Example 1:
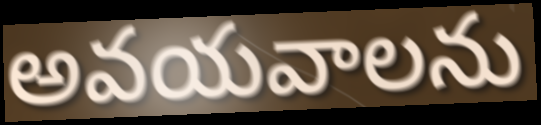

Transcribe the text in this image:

అవయవాలను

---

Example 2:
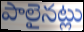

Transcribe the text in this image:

పాలైనట్లు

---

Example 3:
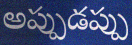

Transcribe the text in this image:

అప్పుడప్పు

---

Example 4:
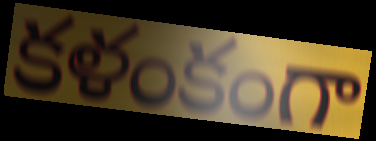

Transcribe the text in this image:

కళంకంగా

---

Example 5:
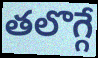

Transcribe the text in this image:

తలొగ్గే